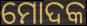
ମୋଦକ